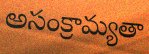
అసంక్రామ్యతా